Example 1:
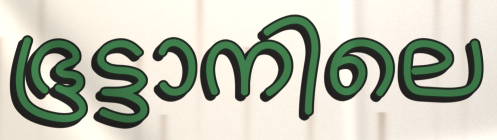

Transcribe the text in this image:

ഭൂട്ടാനിലെ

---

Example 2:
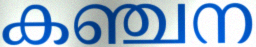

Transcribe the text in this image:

കഞ്ചന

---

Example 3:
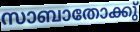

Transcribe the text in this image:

സാബാതോക്കു്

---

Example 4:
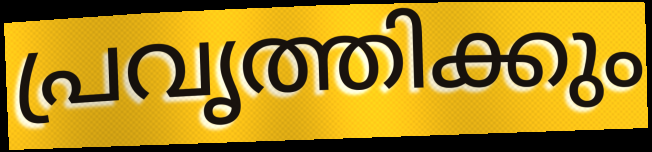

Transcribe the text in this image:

പ്രവൃത്തിക്കും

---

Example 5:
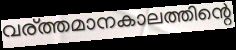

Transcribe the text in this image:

വര്ത്തമാനകാലത്തിന്റെ